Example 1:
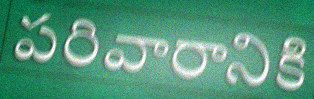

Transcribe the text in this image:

పరివారానికి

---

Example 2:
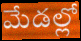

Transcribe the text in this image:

మేడల్లో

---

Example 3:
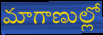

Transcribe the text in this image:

మాగాణుల్లో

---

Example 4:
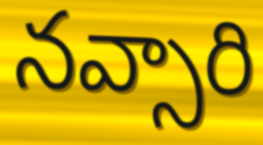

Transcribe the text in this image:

నవ్సారి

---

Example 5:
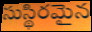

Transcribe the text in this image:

సుస్థిరమైన